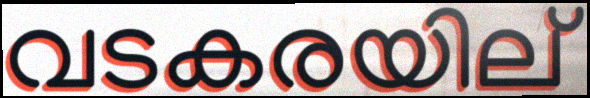
വടകരയില്